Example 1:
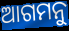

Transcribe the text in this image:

ଆଗମନୁ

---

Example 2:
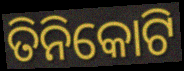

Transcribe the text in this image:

ତିନିକୋଟି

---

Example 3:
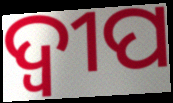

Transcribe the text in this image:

ଦ୍ବୀପ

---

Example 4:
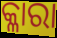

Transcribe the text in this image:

କ୍ଳାରା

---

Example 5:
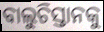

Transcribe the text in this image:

ବାଲୁଚିସ୍ତାନକୁ